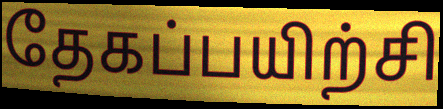
தேகப்பயிற்சி